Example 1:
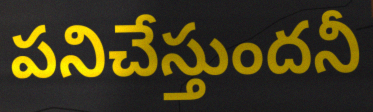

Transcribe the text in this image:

పనిచేస్తుందనీ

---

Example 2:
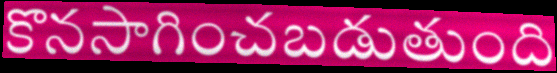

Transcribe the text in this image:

కొనసాగించబడుతుంది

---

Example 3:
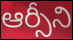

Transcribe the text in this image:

ఆర్సీని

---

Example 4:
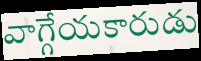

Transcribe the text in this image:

వాగ్గేయకారుడు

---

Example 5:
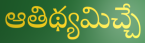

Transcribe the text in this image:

ఆతిథ్యమిచ్చే